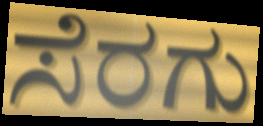
ಸೆರಗು